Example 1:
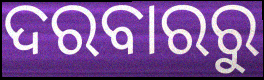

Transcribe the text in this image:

ଦରବାରରୁ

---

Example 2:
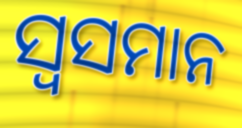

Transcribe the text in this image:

ସ୍ୱସମାନ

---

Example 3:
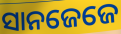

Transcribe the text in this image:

ସାନଜେଜେ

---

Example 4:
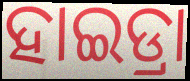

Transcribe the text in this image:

ହାଇଡ୍ରା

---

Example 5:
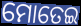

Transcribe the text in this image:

ମୋତେଇ